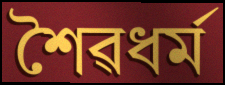
শৈৱধৰ্ম